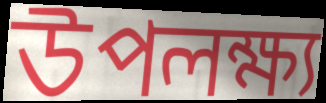
উপলক্ষ্য